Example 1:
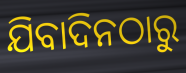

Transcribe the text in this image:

ଯିବାଦିନଠାରୁ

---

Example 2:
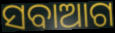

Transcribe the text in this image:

ସବାଆଗ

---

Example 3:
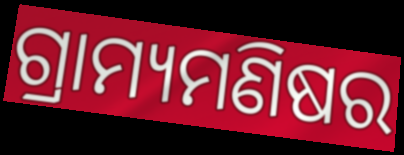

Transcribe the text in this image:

ଗ୍ରାମ୍ୟମଣିଷର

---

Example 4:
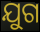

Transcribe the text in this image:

ଯୁଗ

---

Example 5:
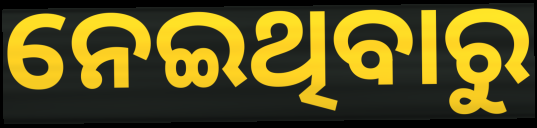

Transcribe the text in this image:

ନେଇଥିବାରୁ